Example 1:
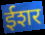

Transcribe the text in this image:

ईशर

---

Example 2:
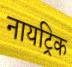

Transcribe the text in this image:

नायट्रिक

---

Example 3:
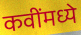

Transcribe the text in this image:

कवींमध्ये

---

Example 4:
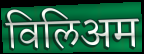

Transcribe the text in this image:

विलिअम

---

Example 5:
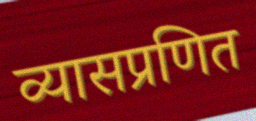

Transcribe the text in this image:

व्यासप्रणित